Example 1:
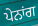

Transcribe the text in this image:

ਪੇਨਾਂਗ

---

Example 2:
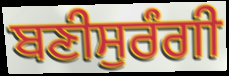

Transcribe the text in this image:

ਬਣੀਸੁਰੰਗੀ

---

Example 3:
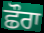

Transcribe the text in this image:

ਛੌਰਾ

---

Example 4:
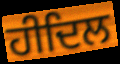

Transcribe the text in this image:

ਹੀਦਿਲ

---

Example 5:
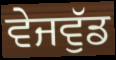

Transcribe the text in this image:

ਵੇਜਵੁੱਡ